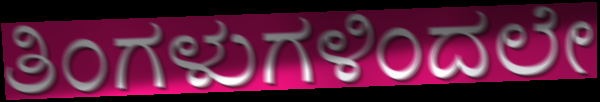
ತಿಂಗಳುಗಳಿಂದಲೇ